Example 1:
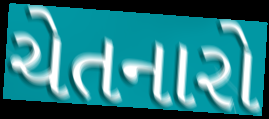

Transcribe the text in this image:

ચેતનારો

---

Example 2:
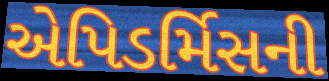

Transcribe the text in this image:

એપિડર્મિસની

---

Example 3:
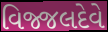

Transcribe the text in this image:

વિજ્જલદેવે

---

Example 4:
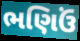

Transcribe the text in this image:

ભણિઉં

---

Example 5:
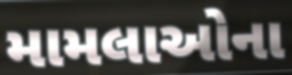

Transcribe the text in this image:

મામલાઓના